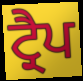
ਟ੍ਰੈਪ